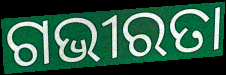
ଗଭୀରତା